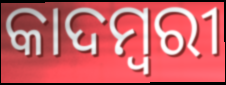
କାଦମ୍ୱରୀ